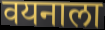
वयनाला